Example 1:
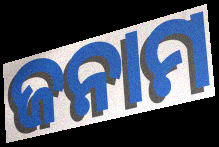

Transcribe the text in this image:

ଜନାମ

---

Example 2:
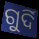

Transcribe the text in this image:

ଗୁର୍ଦି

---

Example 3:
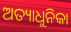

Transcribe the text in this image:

ଅତ୍ୟାଧୁନିକା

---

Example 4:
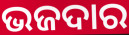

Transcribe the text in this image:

ଭଜଦାର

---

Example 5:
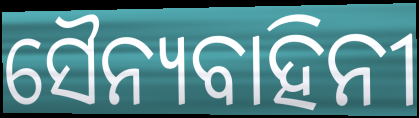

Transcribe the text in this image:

ସୈନ୍ଯବାହିନୀ